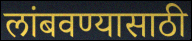
लांबवण्यासाठी